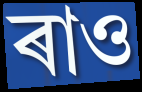
ৰাও